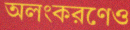
অলংকরণেও